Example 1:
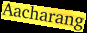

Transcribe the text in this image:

Aacharang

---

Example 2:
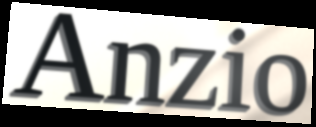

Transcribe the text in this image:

Anzio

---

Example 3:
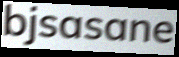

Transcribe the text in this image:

bjsasane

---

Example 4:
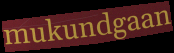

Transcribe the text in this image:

mukundgaan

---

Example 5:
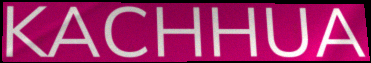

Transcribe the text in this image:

KACHHUA